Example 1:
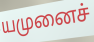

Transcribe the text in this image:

யமுனைச்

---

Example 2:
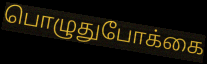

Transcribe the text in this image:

பொழுதுபோக்கை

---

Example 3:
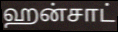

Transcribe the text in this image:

ஹன்சாட்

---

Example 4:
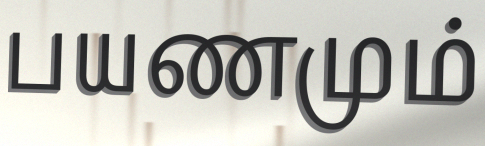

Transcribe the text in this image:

பயணமும்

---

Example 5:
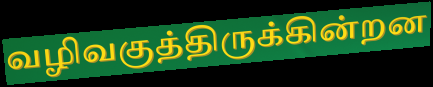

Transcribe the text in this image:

வழிவகுத்திருக்கின்றன